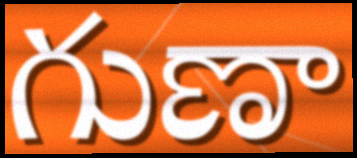
గుణా